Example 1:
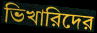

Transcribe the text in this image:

ভিখারিদের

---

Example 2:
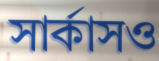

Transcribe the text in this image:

সার্কাসও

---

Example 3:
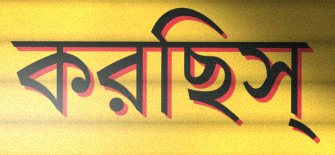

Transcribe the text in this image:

করছিস্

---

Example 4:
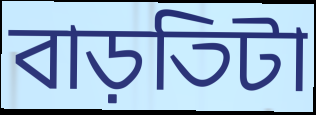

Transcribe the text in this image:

বাড়তিটা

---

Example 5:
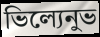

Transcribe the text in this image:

ভিল্যেনুভ